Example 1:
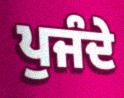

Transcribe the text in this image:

ਪੁਜੰਦੇ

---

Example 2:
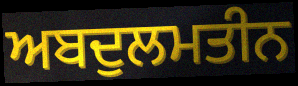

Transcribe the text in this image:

ਅਬਦੁਲਮਤੀਨ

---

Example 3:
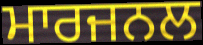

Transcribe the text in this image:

ਮਾਰਜਨਲ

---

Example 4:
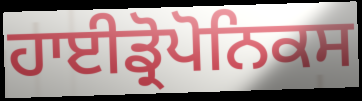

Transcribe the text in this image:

ਹਾਈਡ੍ਰੋਪੋਨਿਕਸ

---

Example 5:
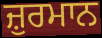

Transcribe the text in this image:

ਜ਼ੁਰਮਾਨ